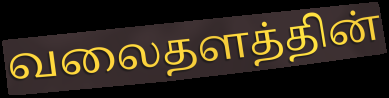
வலைதளத்தின்